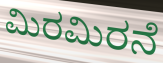
ಮಿರಮಿರನೆ